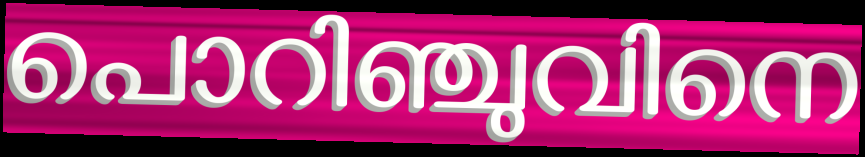
പൊറിഞ്ചുവിനെ